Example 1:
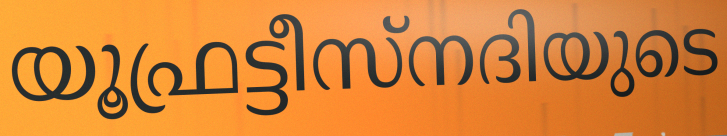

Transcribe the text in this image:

യൂഫ്രട്ടീസ്നദിയുടെ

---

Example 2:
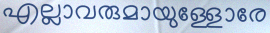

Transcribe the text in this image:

എല്ലാവരുമായുള്ളോരേ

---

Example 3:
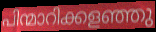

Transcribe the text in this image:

പിന്മാറിക്കളഞ്ഞു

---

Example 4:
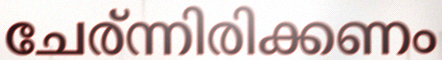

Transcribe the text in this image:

ചേര്ന്നിരിക്കണം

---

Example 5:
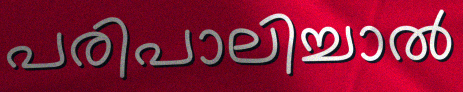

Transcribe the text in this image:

പരിപാലിച്ചാൽ